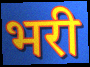
भरी